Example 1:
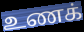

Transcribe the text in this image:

உணக்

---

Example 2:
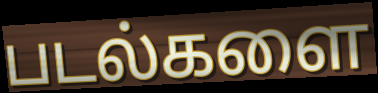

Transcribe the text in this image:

படல்களை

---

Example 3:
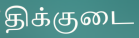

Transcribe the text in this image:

திக்குடை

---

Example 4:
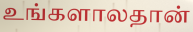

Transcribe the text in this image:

உங்களாலதான்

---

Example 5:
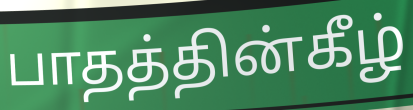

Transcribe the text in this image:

பாதத்தின்கீழ்